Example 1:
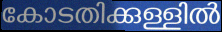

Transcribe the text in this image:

കോടതിക്കുള്ളിൽ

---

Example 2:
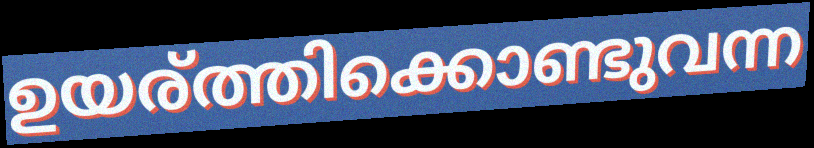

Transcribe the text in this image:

ഉയര്ത്തിക്കൊണ്ടുവന്ന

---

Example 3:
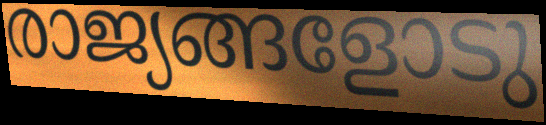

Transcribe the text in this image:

രാജ്യങ്ങളോടു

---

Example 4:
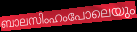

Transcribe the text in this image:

ബാലസിംഹംപോലെയും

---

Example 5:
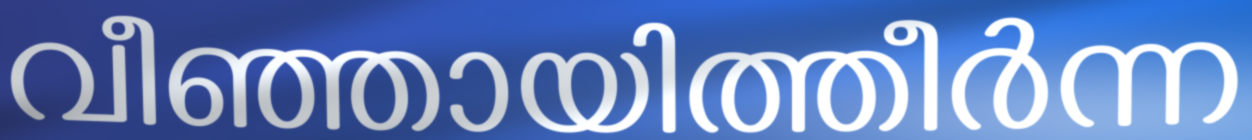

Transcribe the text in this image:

വീഞ്ഞായിത്തീർന്ന